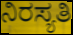
ನಿರಸ್ಯತಿ